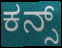
ಕನ್ಸ್